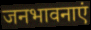
जनभावनाएं